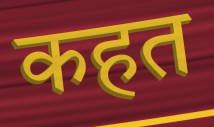
कहत